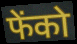
फेंको